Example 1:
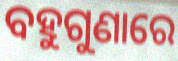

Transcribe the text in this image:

ବହୁଗୁଣାରେ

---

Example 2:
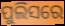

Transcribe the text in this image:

ପୁଲିସରେ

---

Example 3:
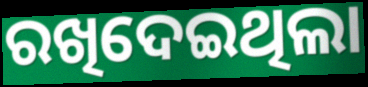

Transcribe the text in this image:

ରଖିଦେଇଥିଲା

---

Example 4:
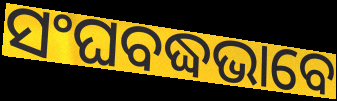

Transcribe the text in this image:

ସଂଘବଦ୍ଧଭାବେ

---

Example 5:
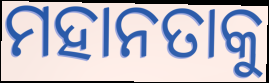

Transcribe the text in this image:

ମହାନତାକୁ